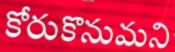
కోరుకొనుమని